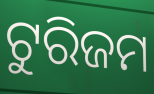
ଟୁରିଜମ